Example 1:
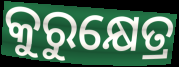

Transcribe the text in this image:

କୁରୁକ୍ଷେତ୍ର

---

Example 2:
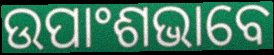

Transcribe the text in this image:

ଉପାଂଶଭାବେ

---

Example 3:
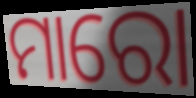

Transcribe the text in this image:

ମାରୋ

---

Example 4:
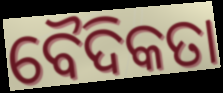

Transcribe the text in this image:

ବୈଦିକତା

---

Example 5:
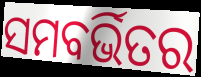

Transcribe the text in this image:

ସମବର୍ଭିତର